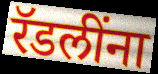
रॅडलींना